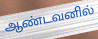
ஆண்டவனில்